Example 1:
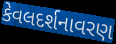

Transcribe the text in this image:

કેવલદર્શનાવરણ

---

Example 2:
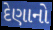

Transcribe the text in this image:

દેણાનો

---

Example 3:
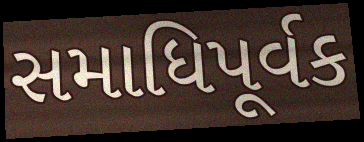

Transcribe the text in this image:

સમાધિપૂર્વક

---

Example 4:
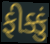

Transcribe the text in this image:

ફીક્કું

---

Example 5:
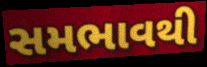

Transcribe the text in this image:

સમભાવથી